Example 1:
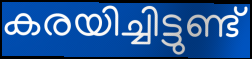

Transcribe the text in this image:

കരയിച്ചിട്ടുണ്ട്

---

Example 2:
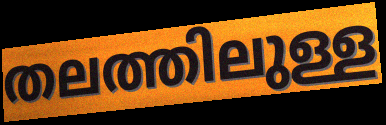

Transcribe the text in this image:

തലത്തിലുള്ള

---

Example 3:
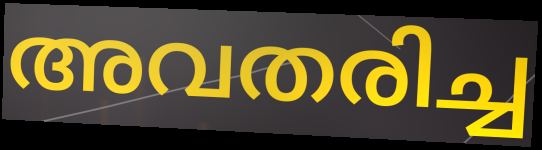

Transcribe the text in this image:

അവതരിച്ച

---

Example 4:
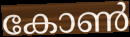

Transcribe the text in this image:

കോൺ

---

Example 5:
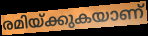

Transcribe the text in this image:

രമിയ്ക്കുകയാണ്